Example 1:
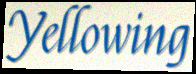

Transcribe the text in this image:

Yellowing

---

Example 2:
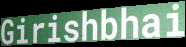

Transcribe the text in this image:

Girishbhai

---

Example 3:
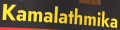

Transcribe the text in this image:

Kamalathmika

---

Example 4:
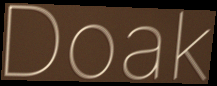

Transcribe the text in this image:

Doak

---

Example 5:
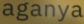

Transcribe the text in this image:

aganya